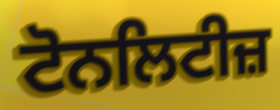
ਟੋਨਲਿਟੀਜ਼